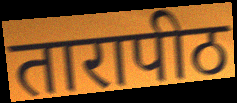
तारापीठ